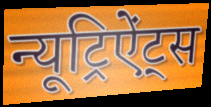
न्यूट्रिऐंट्स